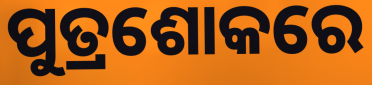
ପୁତ୍ରଶୋକରେ